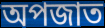
অপজাত